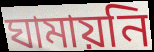
ঘামায়নি